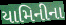
યામિનીના